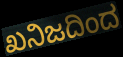
ಖನಿಜದಿಂದ